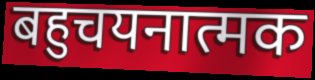
बहुचयनात्मक